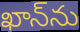
ఖాన్‌ను